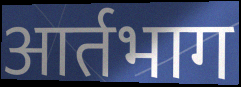
आर्तभाग